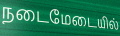
நடைமேடையில்